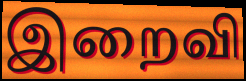
இறைவி